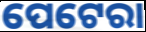
ପେଟେରା